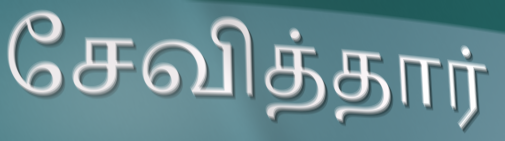
சேவித்தார்